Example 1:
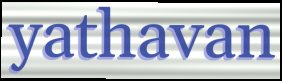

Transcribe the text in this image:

yathavan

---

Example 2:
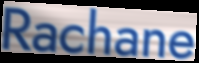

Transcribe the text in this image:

Rachane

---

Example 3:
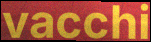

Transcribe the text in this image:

vacchi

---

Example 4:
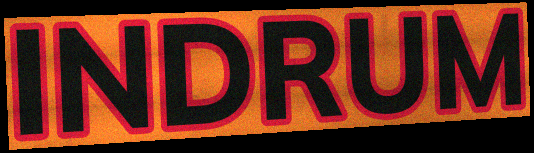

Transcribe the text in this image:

INDRUM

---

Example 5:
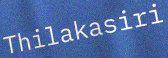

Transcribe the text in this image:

Thilakasiri